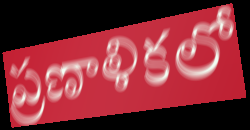
ప్రణాళికలో